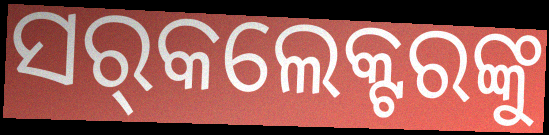
ସର୍‌କଲେକ୍ଟରଙ୍କୁ